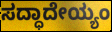
ಸದ್ಧಾದೇಯ್ಯಂ